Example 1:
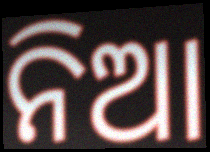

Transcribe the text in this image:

ନିଆ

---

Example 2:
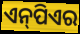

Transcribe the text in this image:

ଏନ୍‌ପିଏର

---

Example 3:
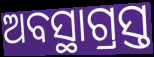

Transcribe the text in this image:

ଅବସ୍ଥାଗ୍ରସ୍ତ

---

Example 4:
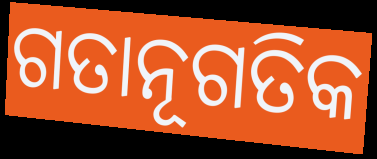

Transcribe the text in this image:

ଗତାନୂଗତିକ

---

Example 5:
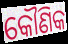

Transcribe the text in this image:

କୌଣିକ